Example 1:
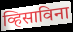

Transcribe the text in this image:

व्हिसाविना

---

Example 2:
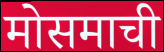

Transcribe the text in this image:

मोसमाची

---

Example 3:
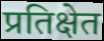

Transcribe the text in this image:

प्रतिक्षेत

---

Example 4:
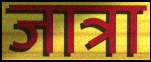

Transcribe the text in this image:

जात्रा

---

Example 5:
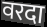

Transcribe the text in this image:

वरदा